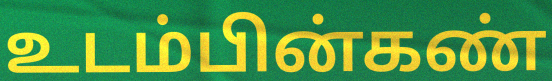
உடம்பின்கண்